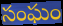
సంఘం